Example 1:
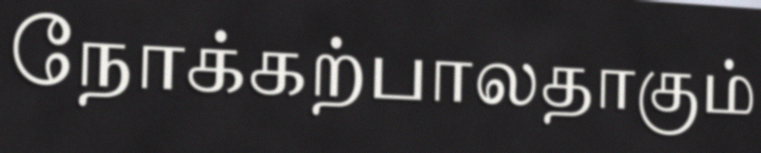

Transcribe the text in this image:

நோக்கற்பாலதாகும்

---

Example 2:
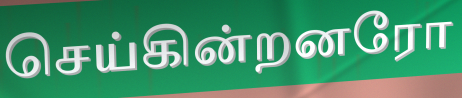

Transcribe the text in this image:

செய்கின்றனரோ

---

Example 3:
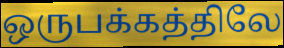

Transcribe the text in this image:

ஒருபக்கத்திலே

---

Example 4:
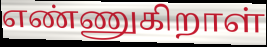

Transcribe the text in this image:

எண்ணுகிறாள்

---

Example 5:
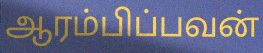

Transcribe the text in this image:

ஆரம்பிப்பவன்